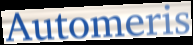
Automeris